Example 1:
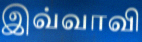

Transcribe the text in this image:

இவ்வாவி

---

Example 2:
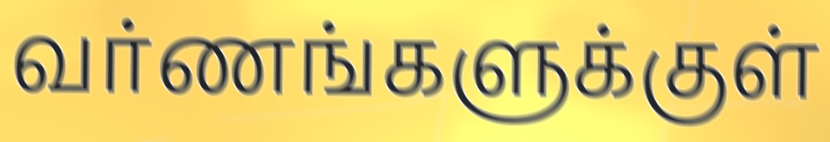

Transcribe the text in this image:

வர்ணங்களுக்குள்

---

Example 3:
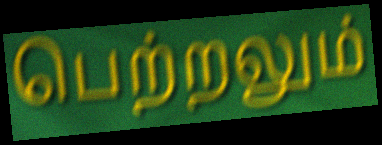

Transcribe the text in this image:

பெற்றலும்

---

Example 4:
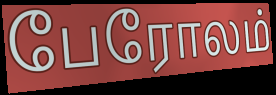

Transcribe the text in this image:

பேரோலம்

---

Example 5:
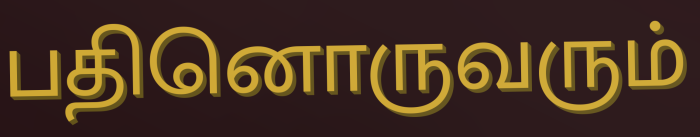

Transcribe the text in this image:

பதினொருவரும்